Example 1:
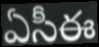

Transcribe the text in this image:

ఏసీఈ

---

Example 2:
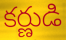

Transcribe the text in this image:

కర్ణుడి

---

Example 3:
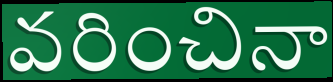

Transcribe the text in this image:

వరించినా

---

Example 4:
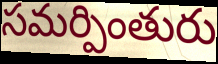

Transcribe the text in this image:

సమర్పింతురు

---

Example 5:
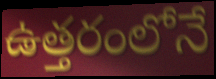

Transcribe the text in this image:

ఉత్తరంలోనే